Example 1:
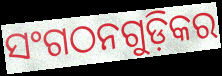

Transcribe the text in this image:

ସଂଗଠନଗୁଡ଼ିକର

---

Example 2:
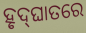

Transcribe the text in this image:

ହୃଦ୍‌ଘାତରେ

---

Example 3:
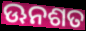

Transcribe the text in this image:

ଊନଶତ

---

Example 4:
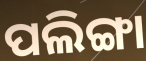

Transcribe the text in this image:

ପଲିଙ୍ଗା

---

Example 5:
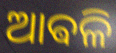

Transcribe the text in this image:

ଆଵଳି